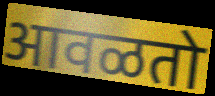
आवळतो